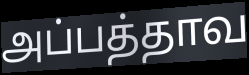
அப்பத்தாவ